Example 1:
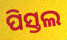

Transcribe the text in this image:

ପିସ୍ତଲ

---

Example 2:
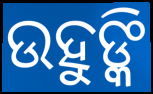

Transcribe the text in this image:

ଉହୁଙ୍କି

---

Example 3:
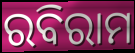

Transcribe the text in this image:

ରବିରାମ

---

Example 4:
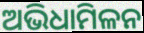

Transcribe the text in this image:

ଅଭିଧାମିଳନ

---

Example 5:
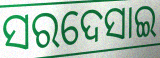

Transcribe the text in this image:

ସରଦେସାଇ